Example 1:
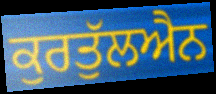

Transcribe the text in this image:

ਕੁਰਤੁੱਲਐਨ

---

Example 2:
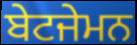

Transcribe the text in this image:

ਬੇਟਜੇਮਨ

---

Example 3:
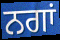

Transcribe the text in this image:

ਨਗਾਂ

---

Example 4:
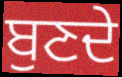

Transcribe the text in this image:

ਬੁਣਦੇ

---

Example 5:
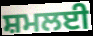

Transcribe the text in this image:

ਸ਼ਮਲਈ